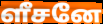
ளீசனே